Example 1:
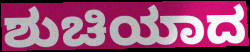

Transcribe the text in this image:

ಶುಚಿಯಾದ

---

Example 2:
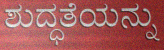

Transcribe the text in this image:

ಶುದ್ಧತೆಯನ್ನು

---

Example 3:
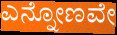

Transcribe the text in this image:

ಎನ್ನೋಣವೇ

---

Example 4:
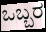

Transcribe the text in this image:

ಒಬ್ಬರ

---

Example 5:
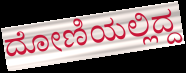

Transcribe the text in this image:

ದೋಣಿಯಲ್ಲಿದ್ದ